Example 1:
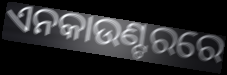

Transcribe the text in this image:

ଏନକାଉଣ୍ଟରରେ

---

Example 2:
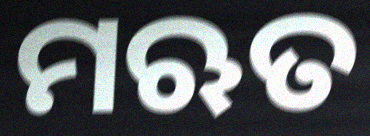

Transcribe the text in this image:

ମଋତ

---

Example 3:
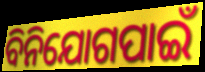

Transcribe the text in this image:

ବିନିଯୋଗପାଇଁ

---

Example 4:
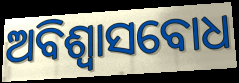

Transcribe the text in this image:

ଅବିଶ୍ୱାସବୋଧ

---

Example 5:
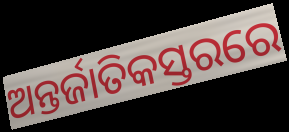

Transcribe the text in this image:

ଅନ୍ତର୍ଜାତିକସ୍ତରରେ